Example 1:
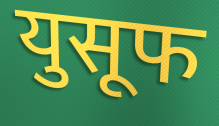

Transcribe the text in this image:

युसूफ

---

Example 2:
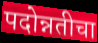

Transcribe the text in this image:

पदोन्नतीचा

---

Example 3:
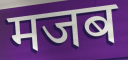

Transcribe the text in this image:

मजब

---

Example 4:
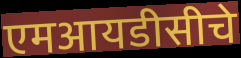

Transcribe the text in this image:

एमआयडीसीचे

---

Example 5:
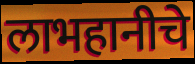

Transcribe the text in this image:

लाभहानीचे